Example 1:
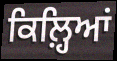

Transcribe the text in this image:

ਕਿਲ਼੍ਹਿਆਂ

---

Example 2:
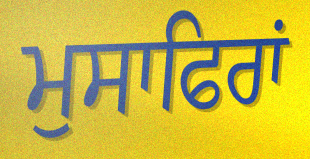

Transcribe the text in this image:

ਮੁਸਾਫਿਰਾਂ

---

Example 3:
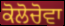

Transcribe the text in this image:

ਕੋਲੋਚੋਵਾ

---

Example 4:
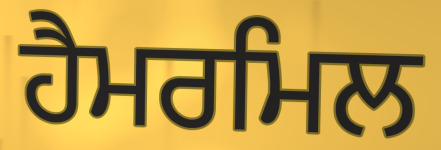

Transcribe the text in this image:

ਹੈਮਰਮਿਲ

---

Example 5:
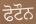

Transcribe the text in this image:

ਫੋਟੌਨ